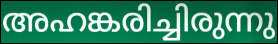
അഹങ്കരിച്ചിരുന്നു